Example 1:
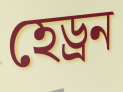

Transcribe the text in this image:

হেড্ৰন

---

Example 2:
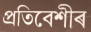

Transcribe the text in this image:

প্ৰতিবেশীৰ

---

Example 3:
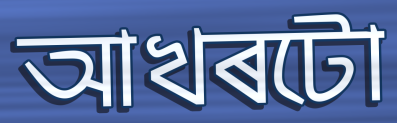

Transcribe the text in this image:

আখৰটো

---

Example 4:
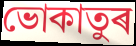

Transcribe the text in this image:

ভোকাতুৰ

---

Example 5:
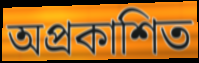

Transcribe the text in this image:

অপ্ৰকাশিত